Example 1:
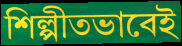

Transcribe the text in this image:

শিল্পীতভাবেই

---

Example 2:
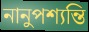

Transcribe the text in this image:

নানুপশ্যন্তি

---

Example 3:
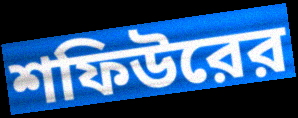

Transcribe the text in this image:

শফিউরের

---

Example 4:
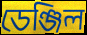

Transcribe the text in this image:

ডেঞ্জিল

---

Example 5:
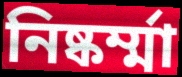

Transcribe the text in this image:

নিষ্কর্ম্মা